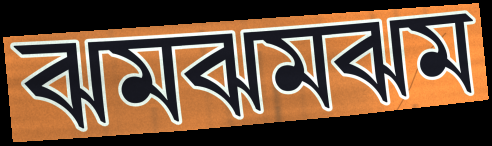
ঝমঝমঝম